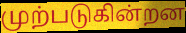
முற்படுகின்றன